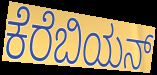
ಕೆರೆಬಿಯನ್